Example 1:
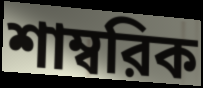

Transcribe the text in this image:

শাম্বরিক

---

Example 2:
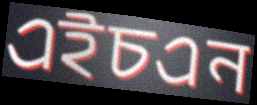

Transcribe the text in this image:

এইচএন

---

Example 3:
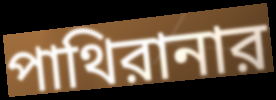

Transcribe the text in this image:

পাথিরানার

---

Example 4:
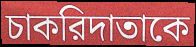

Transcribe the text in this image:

চাকরিদাতাকে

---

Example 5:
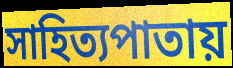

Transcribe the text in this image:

সাহিত্যপাতায়